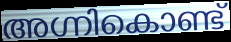
അഗ്നികൊണ്ട്